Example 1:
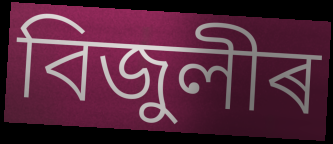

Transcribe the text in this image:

বিজুলীৰ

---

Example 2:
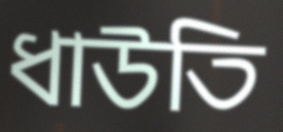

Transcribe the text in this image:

ধাউতি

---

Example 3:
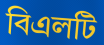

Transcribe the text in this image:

বিএলটি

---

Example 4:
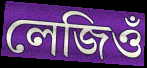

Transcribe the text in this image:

লেজিওঁ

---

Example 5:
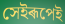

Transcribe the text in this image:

সেইৰূপেই